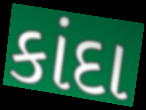
કાંદા